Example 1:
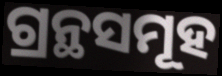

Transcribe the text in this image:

ଗ୍ରନ୍ଥସମୂହ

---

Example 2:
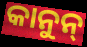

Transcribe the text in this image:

କାନୁନ୍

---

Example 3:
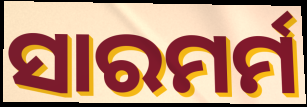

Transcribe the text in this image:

ସାରମର୍ମ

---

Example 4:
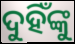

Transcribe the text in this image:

ଦୁହିଁଙ୍କୁ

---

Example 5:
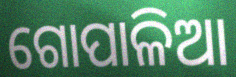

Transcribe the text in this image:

ଗୋପାଳିଆ